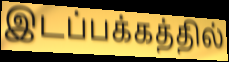
இடப்பக்கத்தில்